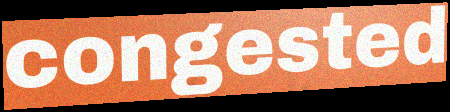
congested